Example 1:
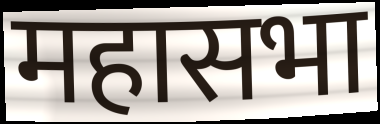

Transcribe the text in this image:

महासभा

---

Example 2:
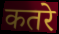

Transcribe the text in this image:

कतरे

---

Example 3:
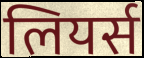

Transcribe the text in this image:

लियर्स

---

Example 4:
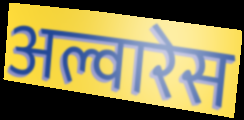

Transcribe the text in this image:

अल्वारेस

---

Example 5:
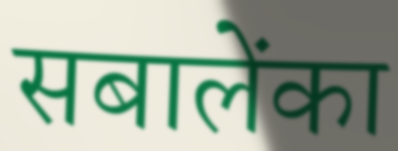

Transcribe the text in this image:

सबालेंका